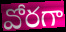
వోరగా